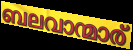
ബലവാന്മാര്